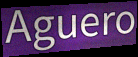
Aguero